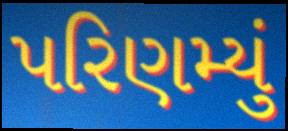
પરિણમ્યું